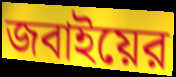
জবাইয়ের